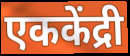
एककेंद्री